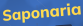
Saponaria